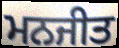
ਮਨਜੀਤ